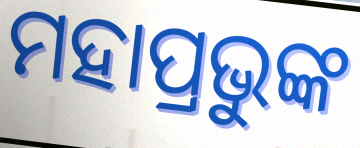
ମହାପ୍ରଭୁଙ୍କ